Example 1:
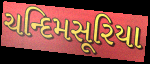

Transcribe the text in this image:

ચન્દિમસૂરિયા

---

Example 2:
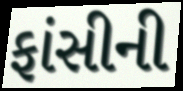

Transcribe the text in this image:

ફાંસીની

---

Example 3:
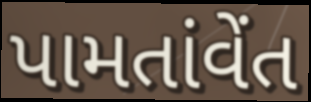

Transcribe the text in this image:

પામતાંવેંત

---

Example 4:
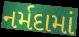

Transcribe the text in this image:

નર્મદામાં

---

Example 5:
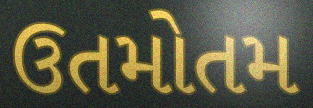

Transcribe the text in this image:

ઉતમોતમ